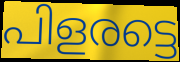
പിളരട്ടെ